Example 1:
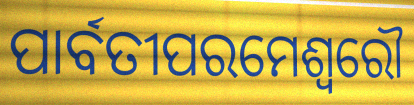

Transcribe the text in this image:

ପାର୍ବତୀପରମେଶ୍ଵରୌ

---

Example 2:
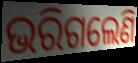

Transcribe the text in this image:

ଭରିଗଲେଣି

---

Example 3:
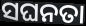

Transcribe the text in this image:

ସଘନତା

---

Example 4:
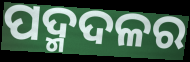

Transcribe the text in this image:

ପଦ୍ମଦଳର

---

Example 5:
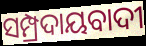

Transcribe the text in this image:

ସମ୍ପ୍ରଦାୟବାଦୀ